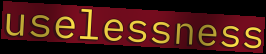
uselessness